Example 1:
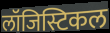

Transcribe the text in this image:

लॉजिस्टिकल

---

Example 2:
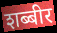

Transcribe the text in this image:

शब्बीर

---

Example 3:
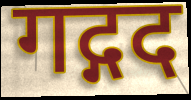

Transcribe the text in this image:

गद्गद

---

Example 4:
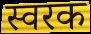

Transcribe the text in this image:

स्वरक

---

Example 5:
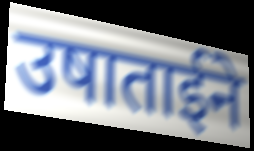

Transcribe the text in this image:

उषाताईने